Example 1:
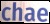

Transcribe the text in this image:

chae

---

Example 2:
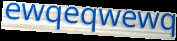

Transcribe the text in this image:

ewqeqwewq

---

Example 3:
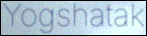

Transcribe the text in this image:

Yogshatak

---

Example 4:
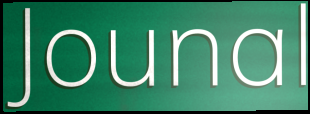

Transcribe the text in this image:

Jounal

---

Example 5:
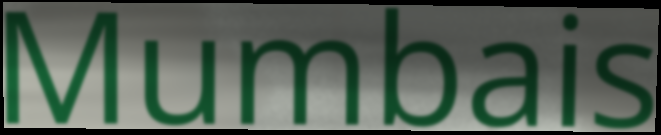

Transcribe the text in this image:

Mumbais